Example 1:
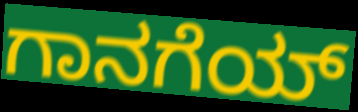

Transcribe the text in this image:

ಗಾನಗೆಯ್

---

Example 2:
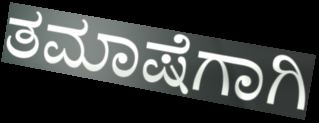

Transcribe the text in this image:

ತಮಾಷೆಗಾಗಿ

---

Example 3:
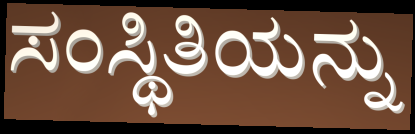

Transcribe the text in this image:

ಸಂಸ್ಥಿತಿಯನ್ನು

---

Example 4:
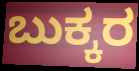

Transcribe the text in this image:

ಬುಕ್ಕರ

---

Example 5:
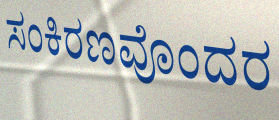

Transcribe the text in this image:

ಸಂಕಿರಣವೊಂದರ